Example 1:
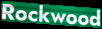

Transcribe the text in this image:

Rockwood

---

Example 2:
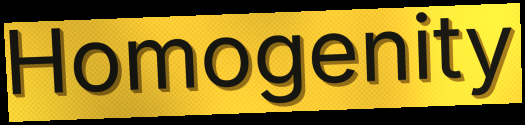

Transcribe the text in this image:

Homogenity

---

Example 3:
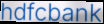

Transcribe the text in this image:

hdfcbank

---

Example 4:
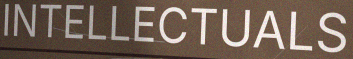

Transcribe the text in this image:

INTELLECTUALS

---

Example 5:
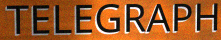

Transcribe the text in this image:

TELEGRAPH